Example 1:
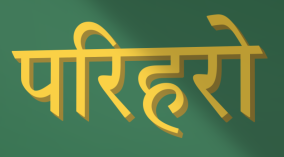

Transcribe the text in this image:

परिहरो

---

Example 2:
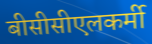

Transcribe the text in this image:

बीसीसीएलकर्मी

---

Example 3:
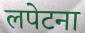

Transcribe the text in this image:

लपेटना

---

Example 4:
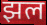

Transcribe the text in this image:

झल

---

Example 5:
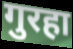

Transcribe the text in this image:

गुरहा